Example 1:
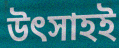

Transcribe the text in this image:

উৎসাহই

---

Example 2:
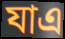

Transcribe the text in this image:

যাএ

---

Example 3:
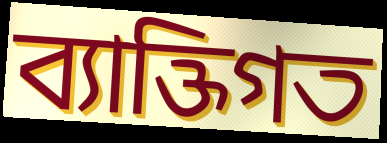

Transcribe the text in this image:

ব্যাক্তিগত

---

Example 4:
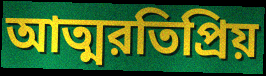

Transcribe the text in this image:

আত্মরতিপ্রিয়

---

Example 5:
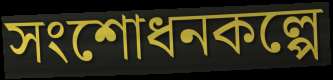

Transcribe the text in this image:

সংশোধনকল্পে